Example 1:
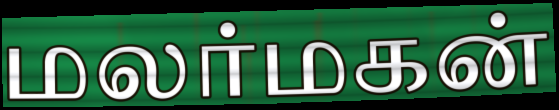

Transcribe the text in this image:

மலர்மகன்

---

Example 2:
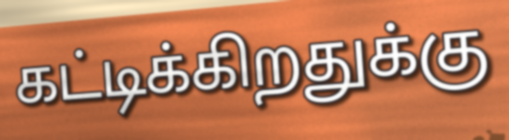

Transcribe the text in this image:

கட்டிக்கிறதுக்கு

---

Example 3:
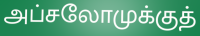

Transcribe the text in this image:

அப்சலோமுக்குத்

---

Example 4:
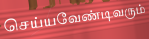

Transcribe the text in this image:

செய்யவேண்டிவரும்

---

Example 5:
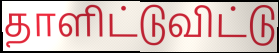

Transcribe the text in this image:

தாளிட்டுவிட்டு